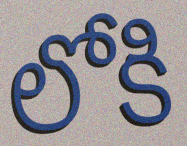
లోకి